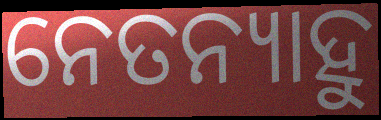
ନେତନ୍ୟାହୁ